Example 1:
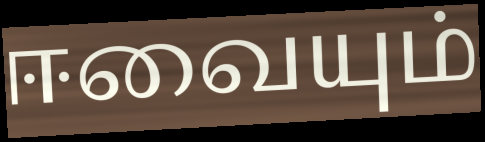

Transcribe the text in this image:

ஈவையும்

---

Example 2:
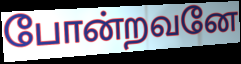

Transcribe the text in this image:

போன்றவனே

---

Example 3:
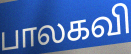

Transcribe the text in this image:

பாலகவி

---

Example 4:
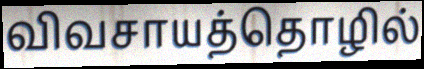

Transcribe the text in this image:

விவசாயத்தொழில்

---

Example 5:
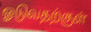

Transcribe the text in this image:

ஓடுவதற்குள்